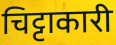
चिट्टाकारी